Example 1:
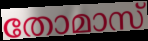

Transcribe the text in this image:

തോമാസ്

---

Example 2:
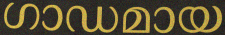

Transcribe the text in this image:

ഗാഡമായ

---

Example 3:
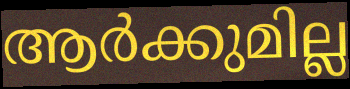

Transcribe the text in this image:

ആർക്കുമില്ല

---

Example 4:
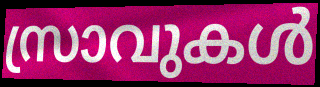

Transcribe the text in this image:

സ്രാവുകൾ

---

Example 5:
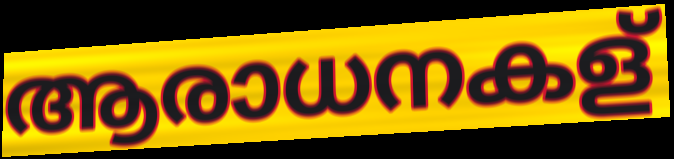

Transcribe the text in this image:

ആരാധനകള്